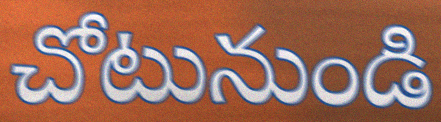
చోటునుండి